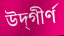
উদ্‌গীর্ণ